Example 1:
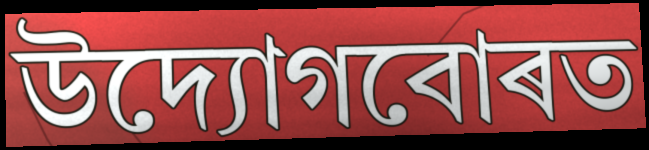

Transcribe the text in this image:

উদ্যোগবোৰত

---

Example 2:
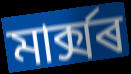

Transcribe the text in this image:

মাৰ্ক্সৰ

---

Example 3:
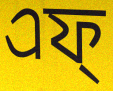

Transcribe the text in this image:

এফ্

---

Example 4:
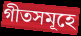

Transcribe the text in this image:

গীতসমূহে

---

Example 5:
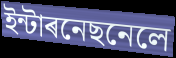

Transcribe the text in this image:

ইন্টাৰনেছনেলে